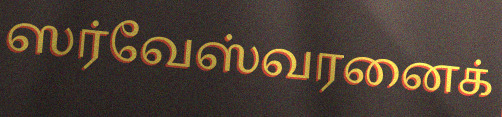
ஸர்வேஸ்வரனைக்